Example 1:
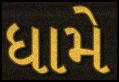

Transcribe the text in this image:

ધામે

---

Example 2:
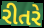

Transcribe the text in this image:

રીતરે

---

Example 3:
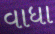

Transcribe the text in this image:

વાધા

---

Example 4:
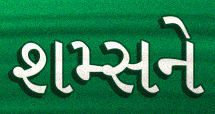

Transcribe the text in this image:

શમ્સને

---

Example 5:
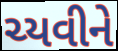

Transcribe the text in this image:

ચ્યવીને